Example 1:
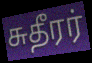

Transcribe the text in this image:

சுதீரர்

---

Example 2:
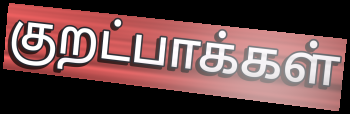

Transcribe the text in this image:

குறட்பாக்கள்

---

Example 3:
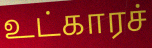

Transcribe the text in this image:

உட்காரச்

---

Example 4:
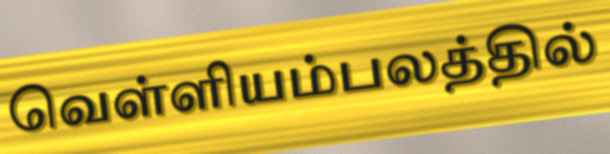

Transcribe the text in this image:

வெள்ளியம்பலத்தில்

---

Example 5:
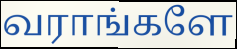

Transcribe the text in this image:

வராங்களே